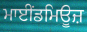
ਮਾਈਂਡਮਿਊਜ਼